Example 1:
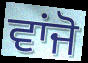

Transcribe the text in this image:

ਵਾਂਜੋ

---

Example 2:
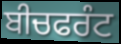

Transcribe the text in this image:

ਬੀਚਫਰੰਟ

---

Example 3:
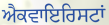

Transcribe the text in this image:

ਐਕਵਾਇਰਿਸਟਾਂ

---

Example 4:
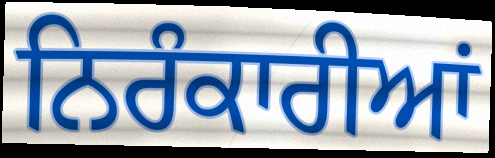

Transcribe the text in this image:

ਨਿਰੰਕਾਰੀਆਂ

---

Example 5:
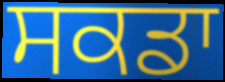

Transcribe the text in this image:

ਸਕਡਾ